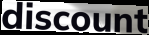
discount